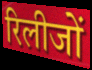
रिलीजों